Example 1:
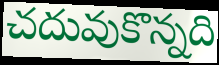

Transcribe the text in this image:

చదువుకొన్నది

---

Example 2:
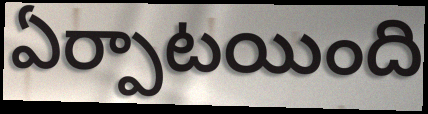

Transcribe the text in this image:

ఏర్పాటయింది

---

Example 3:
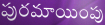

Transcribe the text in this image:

పురమాయింపు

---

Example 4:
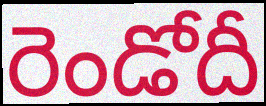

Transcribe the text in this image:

రెండోదీ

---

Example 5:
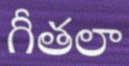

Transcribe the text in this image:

గీతలా